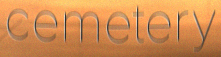
cemetery